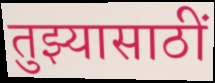
तुझ्यासाठीं